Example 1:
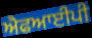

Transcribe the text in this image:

ਐਫਆਈਪੀ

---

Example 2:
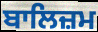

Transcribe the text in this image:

ਬਾਲਿਜ਼ਮ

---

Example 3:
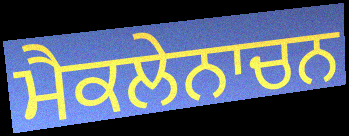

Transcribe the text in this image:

ਮੈਕਲੇਨਾਚਨ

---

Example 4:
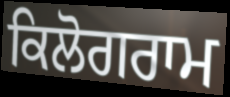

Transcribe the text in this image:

ਕਿਲੋਗਰਾਮ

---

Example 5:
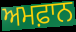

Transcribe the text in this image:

ਅਮਫ਼ਾਨ